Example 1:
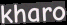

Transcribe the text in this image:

kharo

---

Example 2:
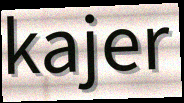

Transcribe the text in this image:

kajer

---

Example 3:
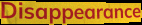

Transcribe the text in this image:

Disappearance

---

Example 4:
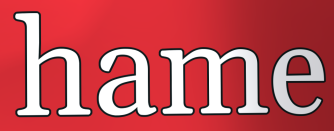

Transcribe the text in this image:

hame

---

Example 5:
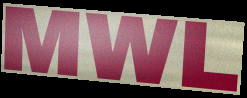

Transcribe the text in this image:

MWL